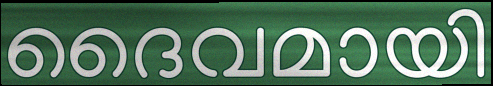
ദൈവമായി